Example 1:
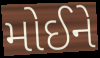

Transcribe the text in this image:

મોઈને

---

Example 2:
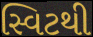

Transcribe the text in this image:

સ્વિટથી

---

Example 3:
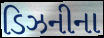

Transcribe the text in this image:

ડિઝનીના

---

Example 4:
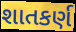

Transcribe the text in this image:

શાતકર્ણ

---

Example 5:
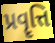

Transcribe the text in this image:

પ્રવૄત્તિ